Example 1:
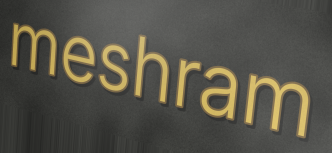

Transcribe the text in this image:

meshram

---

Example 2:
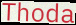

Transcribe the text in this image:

Thoda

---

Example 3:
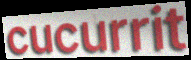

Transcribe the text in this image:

cucurrit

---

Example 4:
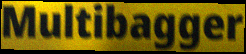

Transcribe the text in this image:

Multibagger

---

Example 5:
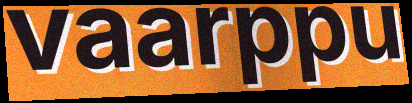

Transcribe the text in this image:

vaarppu